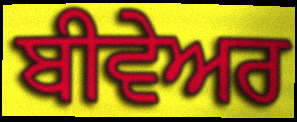
ਬੀਵੇਅਰ